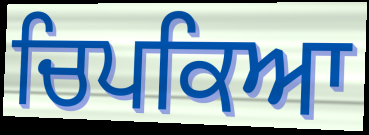
ਚਿਪਕਿਆ